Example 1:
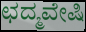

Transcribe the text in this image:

ಛದ್ಮವೇಷಿ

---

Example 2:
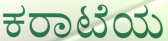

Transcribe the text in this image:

ಕರಾಟೆಯ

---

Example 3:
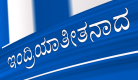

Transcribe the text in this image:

ಇಂದ್ರಿಯಾತೀತನಾದ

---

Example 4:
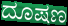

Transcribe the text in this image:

ದೂಷಣ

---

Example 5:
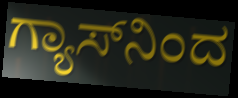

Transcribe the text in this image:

ಗ್ಯಾಸ್‌ನಿಂದ